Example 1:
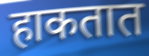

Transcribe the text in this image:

हाकतात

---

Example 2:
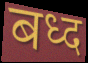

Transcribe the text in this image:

बध्द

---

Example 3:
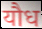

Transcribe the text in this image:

यौध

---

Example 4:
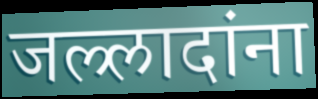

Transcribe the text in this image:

जल्लादांना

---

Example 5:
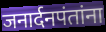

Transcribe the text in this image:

जनार्दनपंतांना